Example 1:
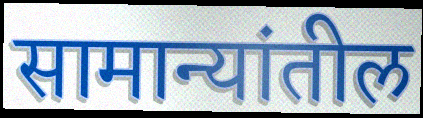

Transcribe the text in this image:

सामान्यांतील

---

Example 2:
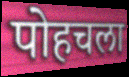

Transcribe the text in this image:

पोहचला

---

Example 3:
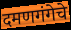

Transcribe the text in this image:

दमणगंगेचे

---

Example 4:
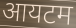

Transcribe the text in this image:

आयटम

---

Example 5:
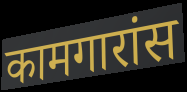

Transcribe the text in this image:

कामगारांस